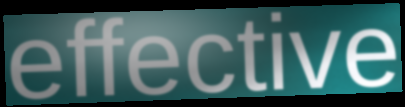
effective